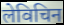
लेविचिन